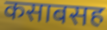
कसाबसह